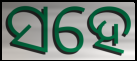
ସହେ